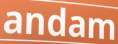
andam